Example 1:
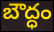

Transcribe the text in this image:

బౌద్ధం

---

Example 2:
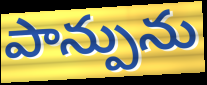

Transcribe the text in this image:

పాన్పును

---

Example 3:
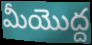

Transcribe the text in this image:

మీయొద్ద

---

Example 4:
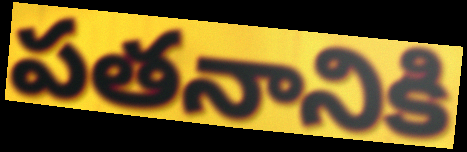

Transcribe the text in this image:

పతనానికి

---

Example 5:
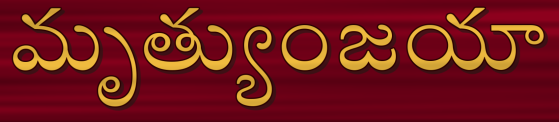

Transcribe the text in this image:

మృత్యుంజయా